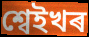
শ্বেইখৰ